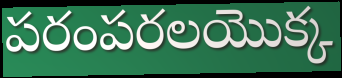
పరంపరలయొక్క